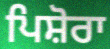
ਪਿਸ਼ੋਰਾ